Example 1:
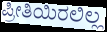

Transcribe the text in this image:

ಪ್ರೀತಿಯಿರಲಿಲ್ಲ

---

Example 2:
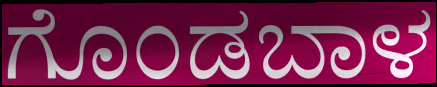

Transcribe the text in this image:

ಗೊಂಡಬಾಳ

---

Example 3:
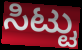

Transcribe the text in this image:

ಸಿಟ್ಟು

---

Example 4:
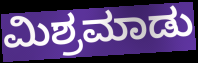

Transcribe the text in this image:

ಮಿಶ್ರಮಾಡು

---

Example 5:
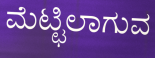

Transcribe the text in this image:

ಮೆಟ್ಟಿಲಾಗುವ